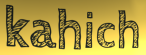
kahich